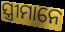
ସ୍ତ୍ରୀମାନେ